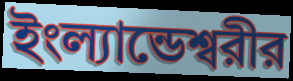
ইংল্যান্ডেশ্বরীর